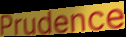
Prudence